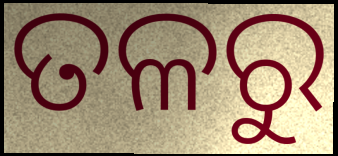
ତଳରୁ